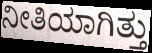
ನೀತಿಯಾಗಿತ್ತು